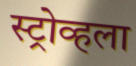
स्ट्रोव्हला